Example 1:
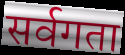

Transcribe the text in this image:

सर्वगता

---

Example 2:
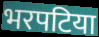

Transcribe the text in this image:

भरपटिया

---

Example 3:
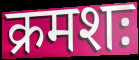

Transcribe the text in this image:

क्रमशः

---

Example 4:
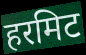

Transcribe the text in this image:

हरमिट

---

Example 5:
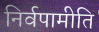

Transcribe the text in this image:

निर्वपामीति